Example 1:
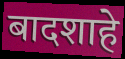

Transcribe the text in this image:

बादशाहे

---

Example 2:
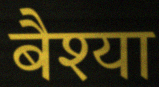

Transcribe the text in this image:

बैश्या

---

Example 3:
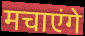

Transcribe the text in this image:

मचाएंगे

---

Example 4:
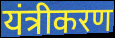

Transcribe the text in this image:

यंत्रीकरण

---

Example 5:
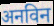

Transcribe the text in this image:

अनविन